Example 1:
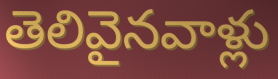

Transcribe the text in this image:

తెలివైనవాళ్లు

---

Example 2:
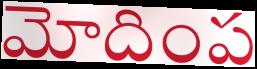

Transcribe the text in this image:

మోదింప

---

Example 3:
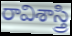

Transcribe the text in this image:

రావిశాస్త్రి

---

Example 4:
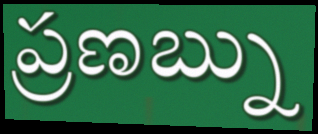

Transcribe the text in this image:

ప్రణబ్ను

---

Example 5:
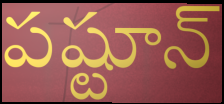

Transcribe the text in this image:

పష్టూన్